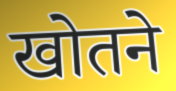
खोतने